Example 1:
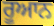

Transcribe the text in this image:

ਰੂਆਨ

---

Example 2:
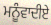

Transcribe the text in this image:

ਮਨੂੰਵਾਦੀਏ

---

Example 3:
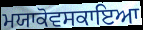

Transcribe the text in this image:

ਮਯਾਕੋਵਸਕਾਇਆ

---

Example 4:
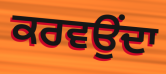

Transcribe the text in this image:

ਕਰਵਉਂਦਾ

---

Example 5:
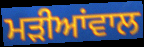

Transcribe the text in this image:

ਮੜੀਆਂਵਾਲ